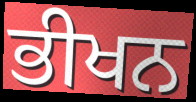
ਭੀਖਨ